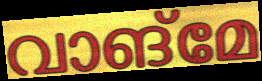
വാങ്മേ